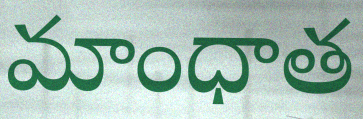
మాంధాత